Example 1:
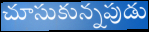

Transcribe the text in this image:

చూసుకున్నపుడు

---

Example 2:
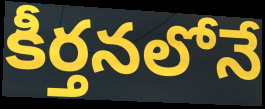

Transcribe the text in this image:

కీర్తనలోనే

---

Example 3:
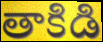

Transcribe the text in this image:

తాకిడి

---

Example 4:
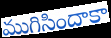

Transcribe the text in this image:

ముగిసిందాకా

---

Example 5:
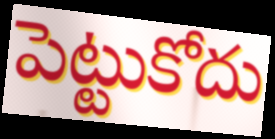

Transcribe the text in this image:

పెట్టుకోదు